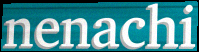
nenachi